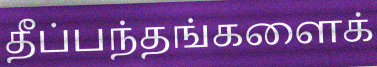
தீப்பந்தங்களைக்